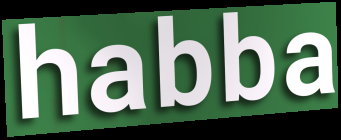
habba